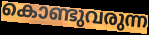
കൊണ്ടുവരുന്ന